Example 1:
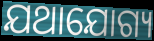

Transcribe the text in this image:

ଯଥାଯୋଗ୍ୟ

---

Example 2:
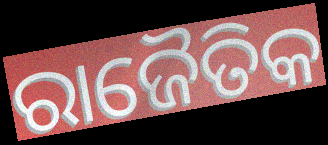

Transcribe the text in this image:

ରାଜୈତିକ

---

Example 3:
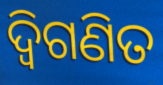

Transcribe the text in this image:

ଦ୍ୱିଗଣିତ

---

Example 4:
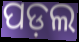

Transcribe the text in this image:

ପଡ଼ଲ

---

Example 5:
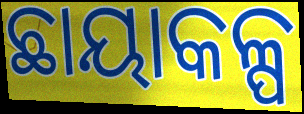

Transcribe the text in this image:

ଛାୟାକଳ୍ପ